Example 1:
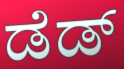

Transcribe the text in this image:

ಡೆಡ್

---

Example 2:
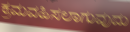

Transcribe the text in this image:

ಕ್ರಮವಹಿಸಲಾಗುವುದು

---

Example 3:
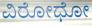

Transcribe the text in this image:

ವಿರೋಧೋ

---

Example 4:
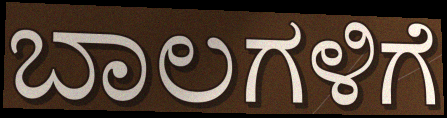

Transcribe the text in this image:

ಬಾಲಗಳಿಗೆ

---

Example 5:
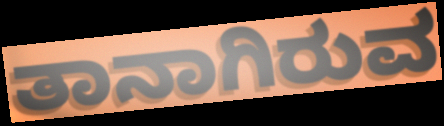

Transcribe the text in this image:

ತಾನಾಗಿರುವ